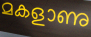
മകളാണു